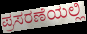
ಪ್ರಸರಣೆಯಲ್ಲಿ